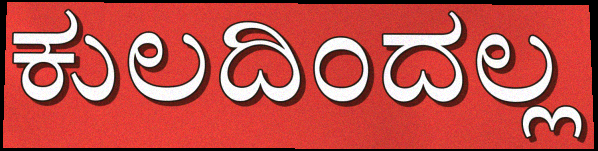
ಕುಲದಿಂದಲ್ಲ